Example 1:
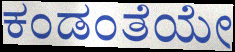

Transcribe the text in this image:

ಕಂಡಂತೆಯೇ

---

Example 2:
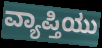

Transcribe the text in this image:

ವ್ಯಾಪ್ತಿಯು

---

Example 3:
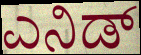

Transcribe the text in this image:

ಎನಿಡ್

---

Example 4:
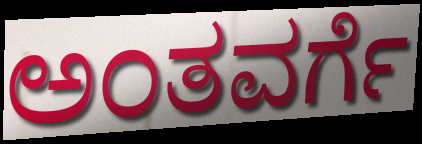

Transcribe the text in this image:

ಅಂತವರ್ಗೆ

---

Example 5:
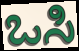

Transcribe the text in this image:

ಒಸಿ